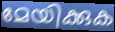
മേയിക്കുക